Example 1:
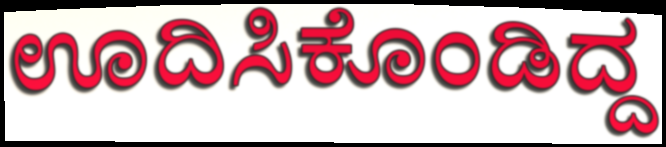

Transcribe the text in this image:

ಊದಿಸಿಕೊಂಡಿದ್ದ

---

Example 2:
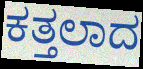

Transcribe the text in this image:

ಕತ್ತಲಾದ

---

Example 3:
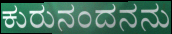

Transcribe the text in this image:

ಕುರುನಂದನನು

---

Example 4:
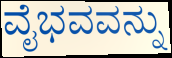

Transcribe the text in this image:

ವೈಭವವನ್ನು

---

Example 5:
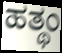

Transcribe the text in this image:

ಹತ್ಥಂ